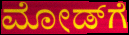
ಮೋಡ್‌ಗೆ